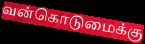
வன்கொடுமைக்கு